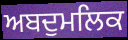
ਅਬਦੁਮਲਿਕ